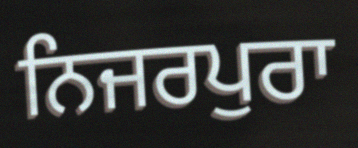
ਨਿਜਰਪੁਰਾ